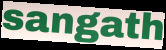
sangath